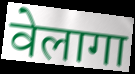
वेलागा